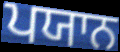
ਪਯਾਨ